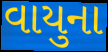
વાયુના